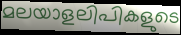
മലയാളലിപികളുടെ